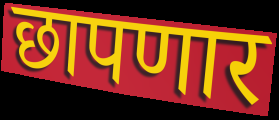
छापणार